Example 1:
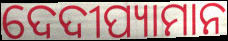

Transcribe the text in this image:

ଦେଦୀପ୍ୟାମାନ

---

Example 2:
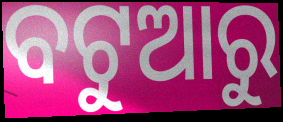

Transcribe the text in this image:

ବଟୁଆରୁ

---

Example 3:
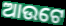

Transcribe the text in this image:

ଆଉଟେ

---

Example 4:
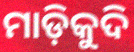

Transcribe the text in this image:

ମାଡ଼ିକୁଦି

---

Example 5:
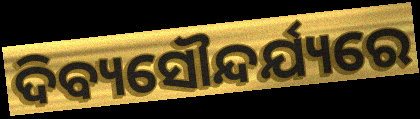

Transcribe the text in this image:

ଦିବ୍ୟସୌନ୍ଦର୍ଯ୍ୟରେ